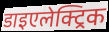
डाइएलेक्ट्रिक